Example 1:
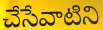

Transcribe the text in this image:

చేసేవాటిని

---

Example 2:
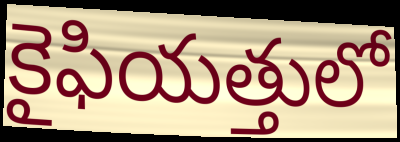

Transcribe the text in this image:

కైఫియత్తులో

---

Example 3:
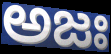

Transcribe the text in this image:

అజః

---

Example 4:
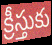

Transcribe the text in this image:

క్రీస్తుకు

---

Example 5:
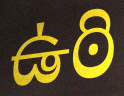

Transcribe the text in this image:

ఉఠి